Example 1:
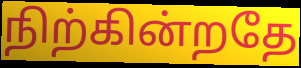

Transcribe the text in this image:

நிற்கின்றதே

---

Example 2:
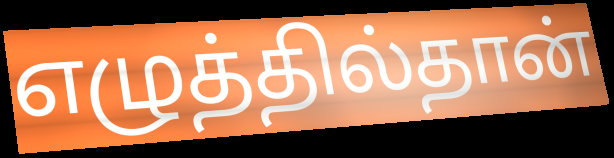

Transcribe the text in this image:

எழுத்தில்தான்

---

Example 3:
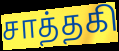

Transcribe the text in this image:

சாத்தகி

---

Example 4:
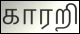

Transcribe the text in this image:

காரறி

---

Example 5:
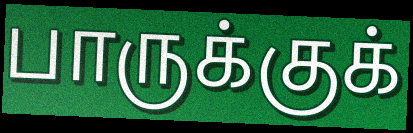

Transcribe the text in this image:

பாருக்குக்